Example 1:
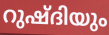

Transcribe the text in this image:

റുഷ്ദിയും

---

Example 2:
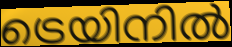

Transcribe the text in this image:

ട്രെയിനിൽ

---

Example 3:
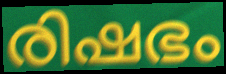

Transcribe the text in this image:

രിഷഭം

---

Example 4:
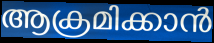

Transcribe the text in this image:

ആക്രമിക്കാൻ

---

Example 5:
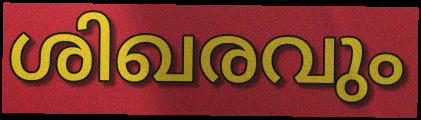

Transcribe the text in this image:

ശിഖരവും